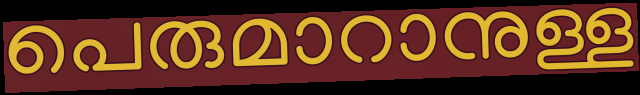
പെരുമാറാനുള്ള